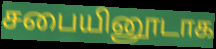
சபையினூடாக